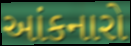
આંકનારો